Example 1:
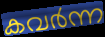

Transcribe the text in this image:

കവർന്ന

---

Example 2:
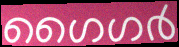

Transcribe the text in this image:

ഗൈഗർ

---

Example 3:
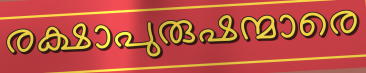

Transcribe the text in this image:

രക്ഷാപുരുഷന്മാരെ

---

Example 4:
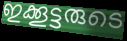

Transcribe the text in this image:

ഇക്കൂട്ടരുടെ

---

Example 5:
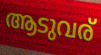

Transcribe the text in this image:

ആടുവര്